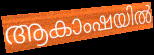
ആകാംഷയിൽ